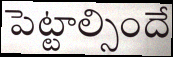
పెట్టాల్సిందే